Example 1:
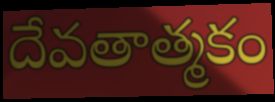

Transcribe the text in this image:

దేవతాత్మకం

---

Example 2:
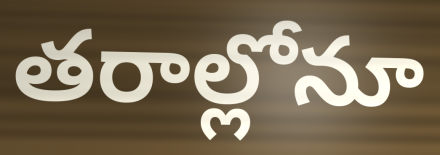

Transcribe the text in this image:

తరాల్లోనూ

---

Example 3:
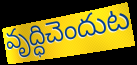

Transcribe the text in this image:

వృద్ధిచెందుట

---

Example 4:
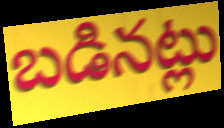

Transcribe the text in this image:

బడినట్లు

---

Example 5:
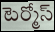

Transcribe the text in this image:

టెర్మోస్